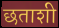
छताशी